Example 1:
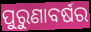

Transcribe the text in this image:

ପୁରୁଣାବର୍ଷର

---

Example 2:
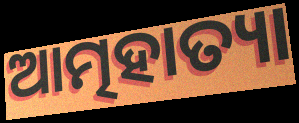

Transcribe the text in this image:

ଆତ୍ମହାତ୍ୟା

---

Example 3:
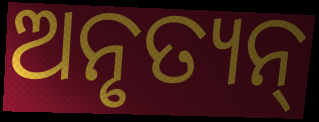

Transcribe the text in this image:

ଅନୃତ୍ୟନ୍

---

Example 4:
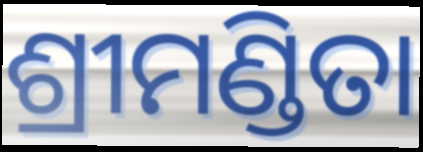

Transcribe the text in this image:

ଶ୍ରୀମଣ୍ଡିତା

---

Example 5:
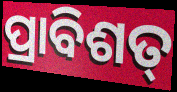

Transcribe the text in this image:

ପ୍ରାବିଶତ୍